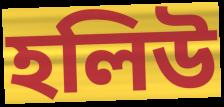
হলিউ